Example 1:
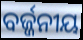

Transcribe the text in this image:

ବର୍ଜ୍ଜନୀୟ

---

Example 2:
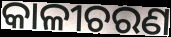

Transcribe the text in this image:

କାଳୀଚରଣ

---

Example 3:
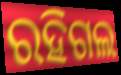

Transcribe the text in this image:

ରହିଗଲ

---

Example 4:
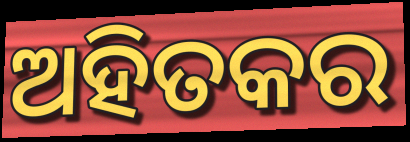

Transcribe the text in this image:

ଅହିତକର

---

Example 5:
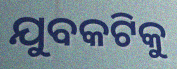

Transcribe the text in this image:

ଯୁବକଟିକୁ